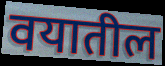
वयातील